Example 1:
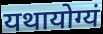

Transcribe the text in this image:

यथायोग्यं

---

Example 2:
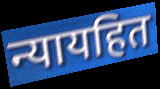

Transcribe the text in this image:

न्यायहित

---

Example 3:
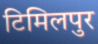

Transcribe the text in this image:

टिमिलपुर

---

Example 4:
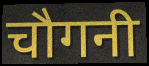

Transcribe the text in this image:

चौगनी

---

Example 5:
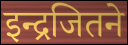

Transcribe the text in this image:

इन्द्रजितने